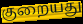
குறையது